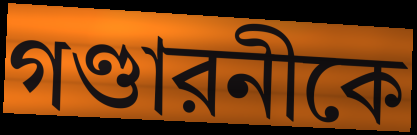
গণ্ডারনীকে